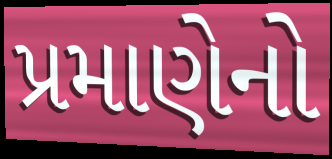
પ્રમાણેનો